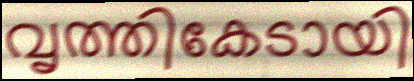
വൃത്തികേടായി